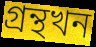
গ্ৰন্থখন